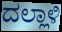
ದಲ್ಲಾಳಿ